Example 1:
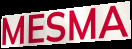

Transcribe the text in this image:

MESMA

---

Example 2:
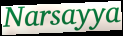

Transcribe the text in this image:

Narsayya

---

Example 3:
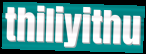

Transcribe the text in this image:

thiliyithu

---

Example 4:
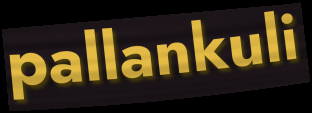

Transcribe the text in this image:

pallankuli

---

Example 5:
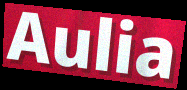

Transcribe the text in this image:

Aulia